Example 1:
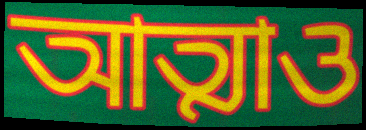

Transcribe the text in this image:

আত্মাও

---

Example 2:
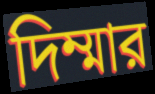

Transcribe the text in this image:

দিম্মার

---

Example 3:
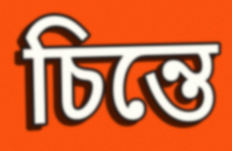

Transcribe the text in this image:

চিন্তে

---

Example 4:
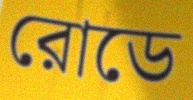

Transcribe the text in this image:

রোডে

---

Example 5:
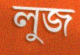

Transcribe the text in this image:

লুজ